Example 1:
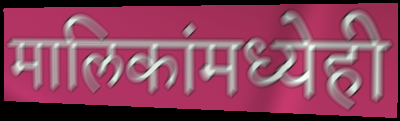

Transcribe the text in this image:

मालिकांमध्येही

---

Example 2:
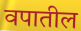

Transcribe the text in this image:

वपातील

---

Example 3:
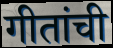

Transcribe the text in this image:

गीतांची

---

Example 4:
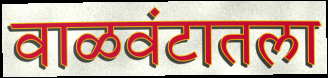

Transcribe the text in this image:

वाळवंटातला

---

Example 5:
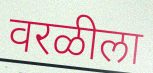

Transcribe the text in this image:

वरळीला